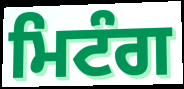
ਮਿਟੰਗ